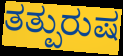
ತತ್ಪುರುಷ